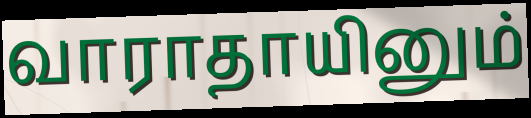
வாராதாயினும்